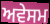
ਅਵੇਸਮ